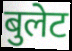
बुलेट